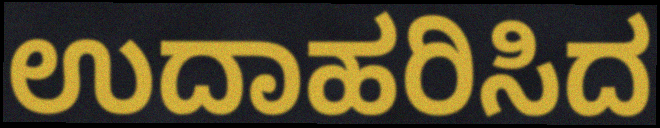
ಉದಾಹರಿಸಿದ